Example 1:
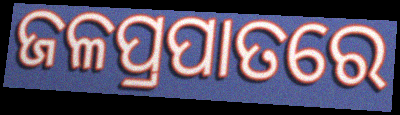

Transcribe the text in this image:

ଜଳପ୍ରପାତରେ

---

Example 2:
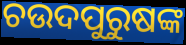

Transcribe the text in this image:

ଚଉଦପୁରୁଷଙ୍କ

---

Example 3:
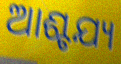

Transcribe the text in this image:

ଆଶ୍ଚଯ୍ୟ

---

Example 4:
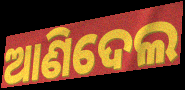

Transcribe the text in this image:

ଆଣିଦେଲ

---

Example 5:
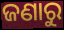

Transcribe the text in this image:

ଜଣାରୁ